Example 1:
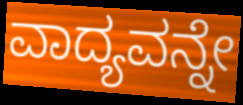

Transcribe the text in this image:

ವಾದ್ಯವನ್ನೇ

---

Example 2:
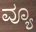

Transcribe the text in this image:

ವ್ಯೂ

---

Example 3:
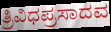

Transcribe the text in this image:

ತ್ರಿವಿಧಪ್ರಸಾದವ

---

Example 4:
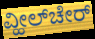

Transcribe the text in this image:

ವ್ಹೀಲ್‌ಚೇರ್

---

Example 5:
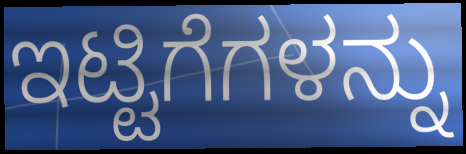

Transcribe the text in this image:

ಇಟ್ಟಿಗೆಗಳನ್ನು